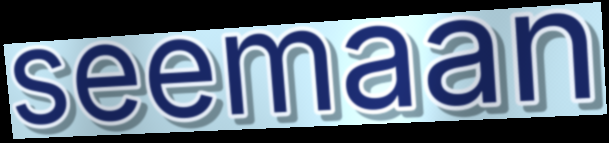
seemaan